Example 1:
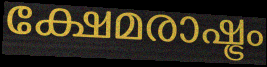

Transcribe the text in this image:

ക്ഷേമരാഷ്ട്രം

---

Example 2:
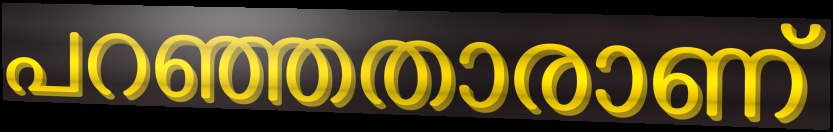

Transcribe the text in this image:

പറഞ്ഞതാരാണ്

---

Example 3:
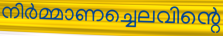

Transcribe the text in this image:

നിർമ്മാണച്ചെലവിന്റെ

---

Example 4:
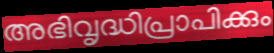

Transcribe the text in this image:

അഭിവൃദ്ധിപ്രാപിക്കും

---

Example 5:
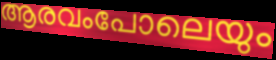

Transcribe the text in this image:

ആരവംപോലെയും